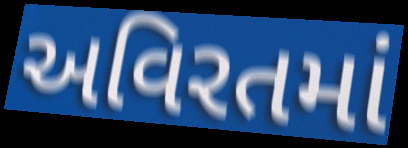
અવિરતમાં